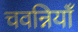
चवन्नियाँ